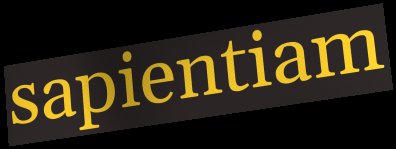
sapientiam